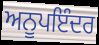
ਅਨੂਪਇੰਦਰ